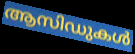
ആസിഡുകൾ